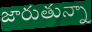
జారుతున్నా